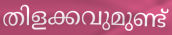
തിളക്കവുമുണ്ട്